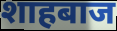
शाहबाज